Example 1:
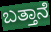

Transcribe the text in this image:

ಬತ್ತಾನೆ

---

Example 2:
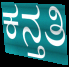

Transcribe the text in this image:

ಕನ್ತತಿ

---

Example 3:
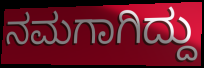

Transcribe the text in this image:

ನಮಗಾಗಿದ್ದು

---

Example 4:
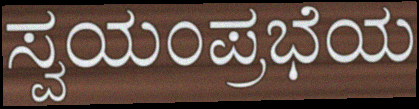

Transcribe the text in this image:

ಸ್ವಯಂಪ್ರಭೆಯ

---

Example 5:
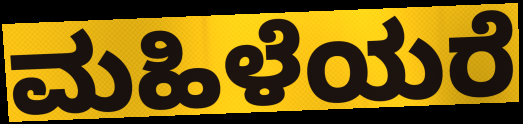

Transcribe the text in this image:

ಮಹಿಳೆಯರೆ